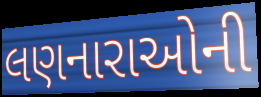
લણનારાઓની